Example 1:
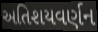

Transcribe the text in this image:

અતિશયવર્ણન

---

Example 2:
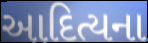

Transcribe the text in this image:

આદિત્યના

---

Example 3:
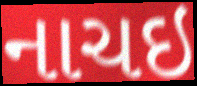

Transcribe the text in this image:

નાચઇ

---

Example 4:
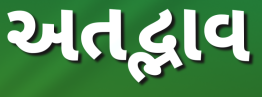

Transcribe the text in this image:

અતદ્ભાવ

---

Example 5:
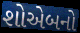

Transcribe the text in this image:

શોએબનો